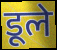
डूले